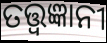
ତତ୍ତ୍ଵଜ୍ଞାନୀ